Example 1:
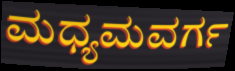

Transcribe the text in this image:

ಮಧ್ಯಮವರ್ಗ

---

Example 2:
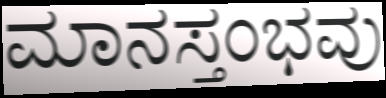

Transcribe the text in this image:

ಮಾನಸ್ತಂಭವು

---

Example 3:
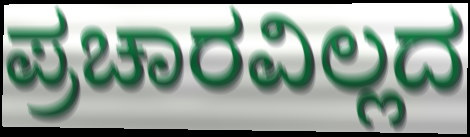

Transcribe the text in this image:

ಪ್ರಚಾರವಿಲ್ಲದ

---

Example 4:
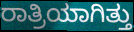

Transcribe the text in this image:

ರಾತ್ರಿಯಾಗಿತ್ತು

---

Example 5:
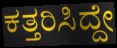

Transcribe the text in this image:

ಕತ್ತರಿಸಿದ್ದೇ